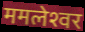
ममलेश्वर